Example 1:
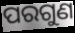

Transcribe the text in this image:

ପରଗୁଣ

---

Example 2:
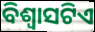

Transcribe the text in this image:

ବିଶ୍ଵାସଟିଏ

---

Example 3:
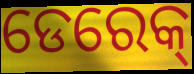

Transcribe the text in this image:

ଡେରେକ୍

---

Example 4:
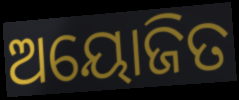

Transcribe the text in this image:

ଅୟୋଜିତ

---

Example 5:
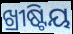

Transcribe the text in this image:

ଖ୍ରୀଷ୍ଟିୟ